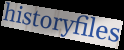
historyfiles